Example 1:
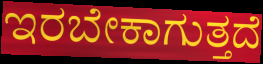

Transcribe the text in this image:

ಇರಬೇಕಾಗುತ್ತದೆ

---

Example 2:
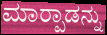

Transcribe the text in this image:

ಮಾರ‍್ಪಾಡನ್ನು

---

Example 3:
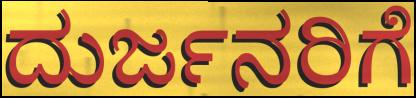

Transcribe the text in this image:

ದುರ್ಜನರಿಗೆ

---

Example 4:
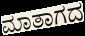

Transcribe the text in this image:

ಮಾತಾಗದ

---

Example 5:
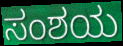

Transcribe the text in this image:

ಸಂಶಯ